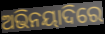
ଅଭିନୟାଦିରେ